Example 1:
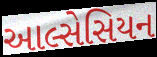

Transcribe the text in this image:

આલ્સેસિયન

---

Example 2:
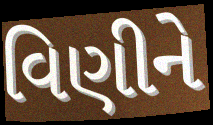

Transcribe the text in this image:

વિણીને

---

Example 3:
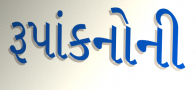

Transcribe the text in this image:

રૂપાંકનોની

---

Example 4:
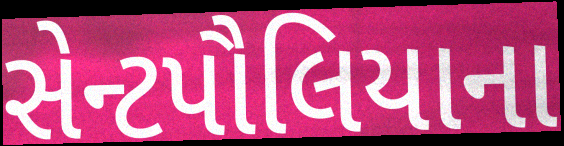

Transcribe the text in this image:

સેન્ટપૌલિયાના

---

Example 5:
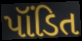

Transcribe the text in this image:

પૉંડિત